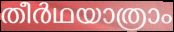
തീർഥയാത്രാം